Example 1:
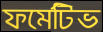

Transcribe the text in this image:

ফর্মেটিভ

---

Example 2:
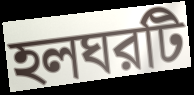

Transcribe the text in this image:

হলঘরটি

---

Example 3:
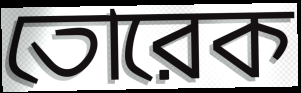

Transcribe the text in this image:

তোরেক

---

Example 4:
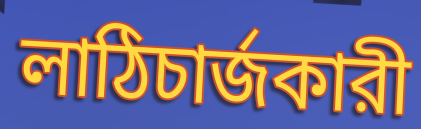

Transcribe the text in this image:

লাঠিচার্জকারী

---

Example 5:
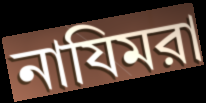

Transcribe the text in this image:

নাযিমরা